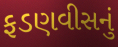
ફડણવીસનું